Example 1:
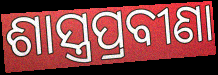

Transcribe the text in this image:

ଶାସ୍ତ୍ରପ୍ରବୀଣା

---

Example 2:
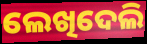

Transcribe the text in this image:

ଲେଖିଦେଲି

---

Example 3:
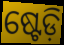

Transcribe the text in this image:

ଷ୍ଟେଡ଼ି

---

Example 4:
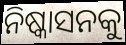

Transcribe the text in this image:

ନିଷ୍କାସନକୁ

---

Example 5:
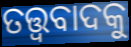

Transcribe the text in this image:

ତତ୍ତ୍ୱବାଦକୁ